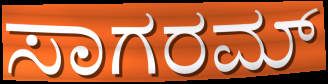
ಸಾಗರಮ್